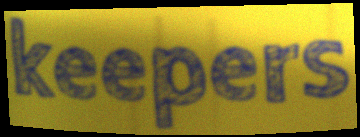
keepers